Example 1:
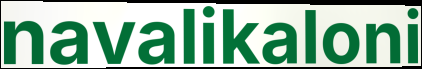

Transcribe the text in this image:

navalikaloni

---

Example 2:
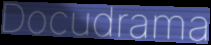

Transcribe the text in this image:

Docudrama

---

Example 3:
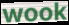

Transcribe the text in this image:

wook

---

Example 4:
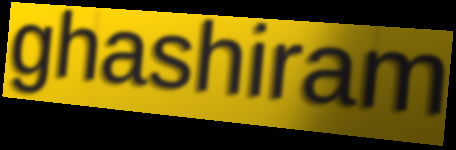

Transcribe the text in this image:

ghashiram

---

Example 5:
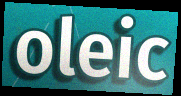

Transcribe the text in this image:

oleic